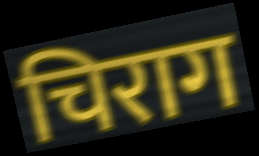
चिराग